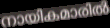
നായികമാരിൽ